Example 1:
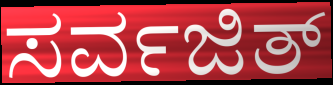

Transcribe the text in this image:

ಸರ್ವಜಿತ್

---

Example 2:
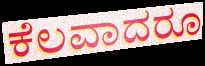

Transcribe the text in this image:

ಕೆಲವಾದರೂ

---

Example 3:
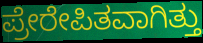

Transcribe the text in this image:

ಪ್ರೇರೇಪಿತವಾಗಿತ್ತು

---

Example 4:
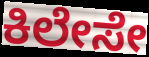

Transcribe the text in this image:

ಕಿಲೇಸೇ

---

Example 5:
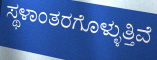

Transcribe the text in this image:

ಸ್ಥಳಾಂತರಗೊಳ್ಳುತ್ತಿವೆ